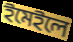
ইমেইলে